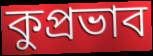
কুপ্রভাব